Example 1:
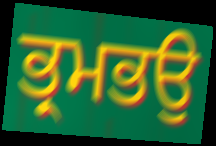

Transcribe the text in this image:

ਭ੍ਰਮਭਉ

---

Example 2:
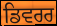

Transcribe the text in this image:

ਡਿਵਰਰ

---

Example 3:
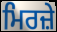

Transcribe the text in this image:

ਮਿਰਜ਼ੇ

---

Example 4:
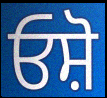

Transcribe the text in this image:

ਓਸ਼ੋ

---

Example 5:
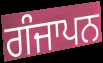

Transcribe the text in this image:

ਗੰਜਾਪਨ